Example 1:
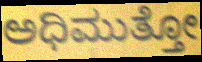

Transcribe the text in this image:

ಅಧಿಮುತ್ತೋ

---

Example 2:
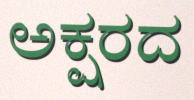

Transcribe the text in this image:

ಅಕ್ಷರದ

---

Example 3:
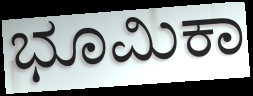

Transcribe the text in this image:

ಭೂಮಿಕಾ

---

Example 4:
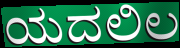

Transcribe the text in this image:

ಯದಲಿಲ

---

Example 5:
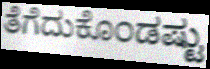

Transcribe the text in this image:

ತೆಗೆದುಕೊಂಡಷ್ಟು